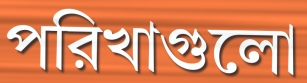
পরিখাগুলো